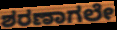
ಶರಣಾಗಲೇ